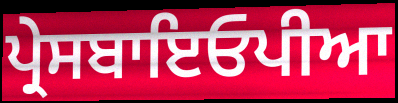
ਪ੍ਰੇਸਬਾਇਓਪੀਆ